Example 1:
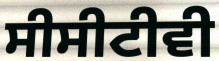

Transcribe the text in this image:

ਸੀਸੀਟੀਵੀ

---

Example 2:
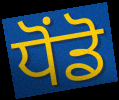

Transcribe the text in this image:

ਧੋਂਡੋ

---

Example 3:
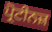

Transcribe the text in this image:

ਪ੍ਰੋਟੀਨਜ਼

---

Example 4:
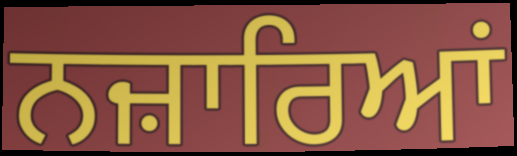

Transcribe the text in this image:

ਨਜ਼ਾਰਿਆਂ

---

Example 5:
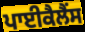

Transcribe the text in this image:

ਪਾਈਕੈਲੈਂਸ